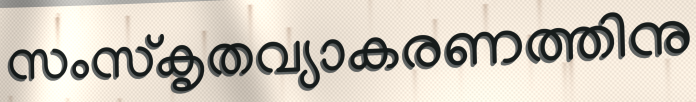
സംസ്കൃതവ്യാകരണത്തിനു